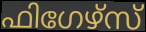
ഫിഗേഴ്സ്